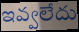
ఇవ్వలేదు